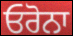
ਓਰੋਨਾ